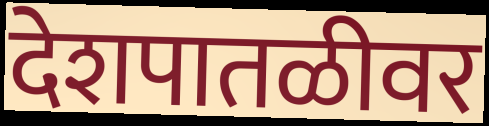
देशपातळीवर